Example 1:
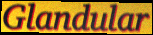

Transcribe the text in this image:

Glandular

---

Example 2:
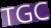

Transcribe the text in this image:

TGC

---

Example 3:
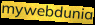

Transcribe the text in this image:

mywebdunia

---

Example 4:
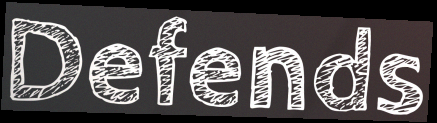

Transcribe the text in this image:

Defends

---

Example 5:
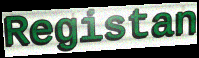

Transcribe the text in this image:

Registan